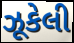
ઝૂકેલી